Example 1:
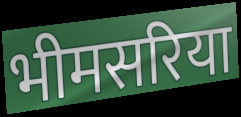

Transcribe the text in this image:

भीमसरिया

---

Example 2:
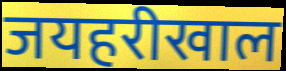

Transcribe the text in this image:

जयहरीखाल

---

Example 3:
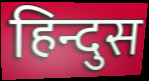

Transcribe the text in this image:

हिन्दुस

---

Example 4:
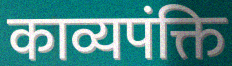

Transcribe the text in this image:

काव्यपंक्ति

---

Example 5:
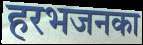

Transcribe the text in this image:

हरभजनका